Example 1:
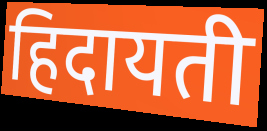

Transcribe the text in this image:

हिदायती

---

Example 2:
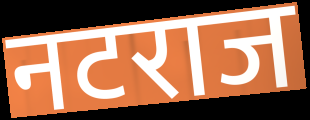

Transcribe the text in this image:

नटराज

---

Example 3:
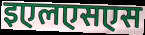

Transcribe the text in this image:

इएलएसएस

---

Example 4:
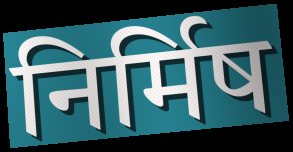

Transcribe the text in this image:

निर्मिष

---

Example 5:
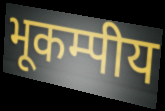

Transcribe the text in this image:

भूकम्पीय